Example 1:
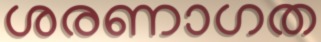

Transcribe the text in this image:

ശരണാഗത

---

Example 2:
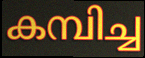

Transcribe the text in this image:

കമ്പിച്ച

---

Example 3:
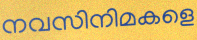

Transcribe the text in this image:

നവസിനിമകളെ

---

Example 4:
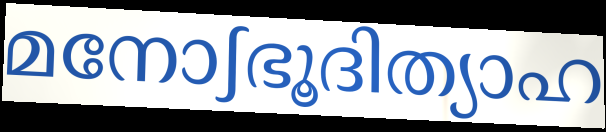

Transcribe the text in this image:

മനോഽഭൂദിത്യാഹ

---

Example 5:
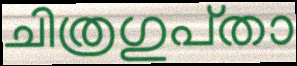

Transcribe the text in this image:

ചിത്രഗുപ്‌താ